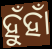
ହୁଁହାଁ